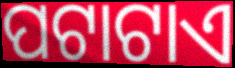
ପଟାଟାଏ